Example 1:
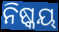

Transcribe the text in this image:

ନିଷ୍କୟ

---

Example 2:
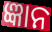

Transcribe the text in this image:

ଜ୍ଞାନ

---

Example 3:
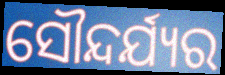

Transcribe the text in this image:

ସୌନ୍ଦର୍ଯ୍ୟର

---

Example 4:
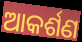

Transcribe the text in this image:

ଆକର୍ଶଣ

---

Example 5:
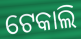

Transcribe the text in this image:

ଟେକାଲି